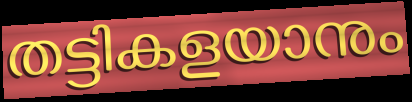
തട്ടികളയാനും